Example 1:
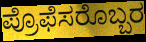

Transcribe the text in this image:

ಪ್ರೊಫೆಸರೊಬ್ಬರ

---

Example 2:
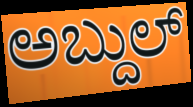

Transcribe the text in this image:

ಅಬ್ದುಲ್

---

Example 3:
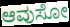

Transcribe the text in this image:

ಆವುಸೋ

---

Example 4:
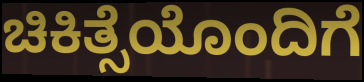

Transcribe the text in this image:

ಚಿಕಿತ್ಸೆಯೊಂದಿಗೆ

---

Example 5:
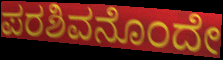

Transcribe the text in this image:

ಪರಶಿವನೊಂದೇ